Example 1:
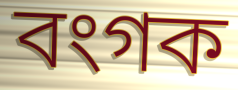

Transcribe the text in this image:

বংগক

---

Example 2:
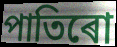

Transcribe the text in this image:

পাতিৰো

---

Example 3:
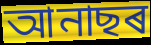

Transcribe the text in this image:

আনাছৰ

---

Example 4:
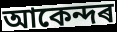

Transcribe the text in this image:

আকেন্দৰ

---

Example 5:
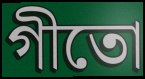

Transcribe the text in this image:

গীতো